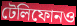
টেলিফোনও